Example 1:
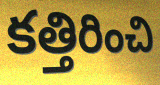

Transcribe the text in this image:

కత్తిరించి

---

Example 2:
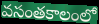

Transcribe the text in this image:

వసంతకాలంలో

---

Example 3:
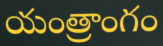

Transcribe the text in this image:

యంత్రాంగం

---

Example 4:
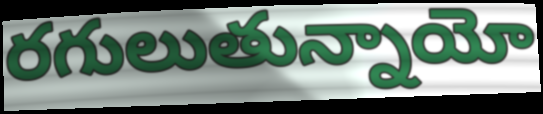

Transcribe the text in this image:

రగులుతున్నాయో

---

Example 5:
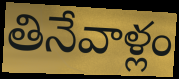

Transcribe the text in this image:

తినేవాళ్లం